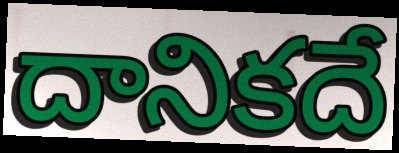
దానికదే